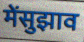
मेंसुझाव